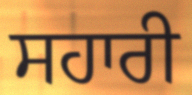
ਸਹਾਰੀ